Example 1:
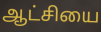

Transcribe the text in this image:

ஆட்சியை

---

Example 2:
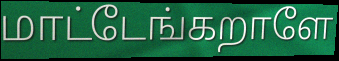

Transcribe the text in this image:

மாட்டேங்கறாளே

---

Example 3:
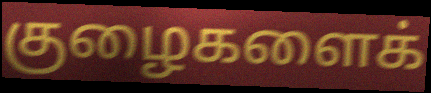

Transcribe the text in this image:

குழைகளைக்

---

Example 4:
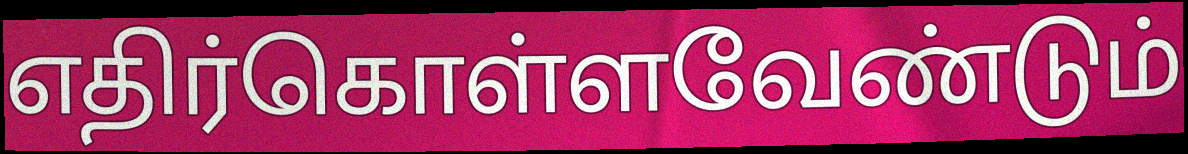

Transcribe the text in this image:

எதிர்கொள்ளவேண்டும்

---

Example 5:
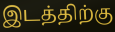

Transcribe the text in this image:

இடத்திற்கு